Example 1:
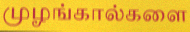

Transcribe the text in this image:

முழங்கால்களை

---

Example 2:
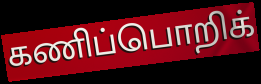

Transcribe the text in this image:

கணிப்பொறிக்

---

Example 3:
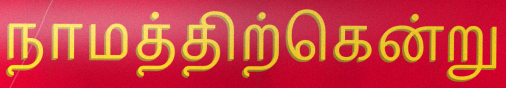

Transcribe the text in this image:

நாமத்திற்கென்று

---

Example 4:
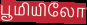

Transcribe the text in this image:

பூமியிலோ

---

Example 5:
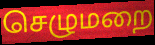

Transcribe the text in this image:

செழுமறை